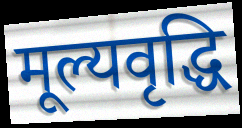
मूल्यवृद्धि